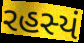
રહસ્યં